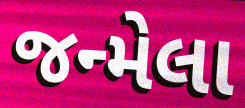
જન્મેલા